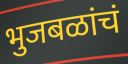
भुजबळांचं